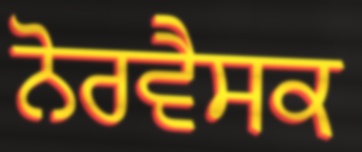
ਨੋਰਵੈਸਕ